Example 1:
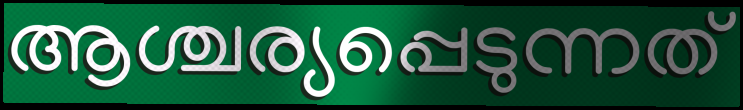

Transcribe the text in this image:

ആശ്ചര്യപ്പെടുന്നത്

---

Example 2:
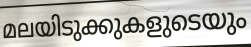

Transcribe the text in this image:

മലയിടുക്കുകളുടെയും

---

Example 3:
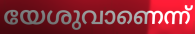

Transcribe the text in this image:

യേശുവാണെന്ന്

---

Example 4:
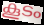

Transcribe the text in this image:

കൂടം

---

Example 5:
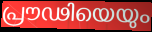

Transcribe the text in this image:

പ്രൗഢിയെയും